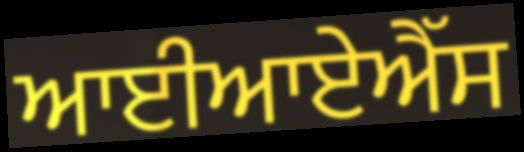
ਆਈਆਏਐੱਸ